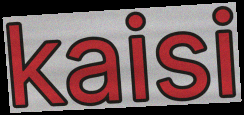
kaisi